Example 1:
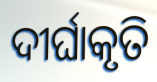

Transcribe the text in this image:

ଦୀର୍ଘାକୃତି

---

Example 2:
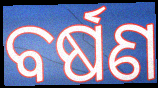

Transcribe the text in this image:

ବର୍ଷଣ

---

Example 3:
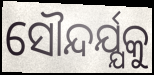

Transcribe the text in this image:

ସୌନ୍ଦର୍ଯ୍ଯକୁ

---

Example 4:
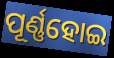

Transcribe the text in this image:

ପୂର୍ଣ୍ଣହୋଇ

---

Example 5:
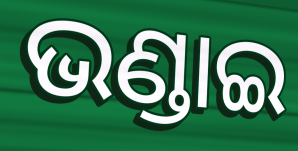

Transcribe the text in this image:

ଭଣ୍ଡାଇ